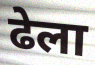
ढेला